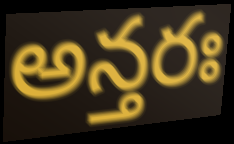
అన్తరః